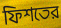
ফিশতের